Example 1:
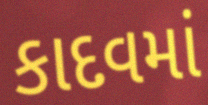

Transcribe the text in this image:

કાદવમાં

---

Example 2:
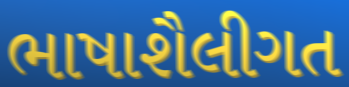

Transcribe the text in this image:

ભાષાશૈલીગત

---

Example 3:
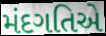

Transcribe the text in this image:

મંદગતિએ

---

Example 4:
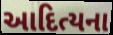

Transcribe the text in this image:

આદિત્યના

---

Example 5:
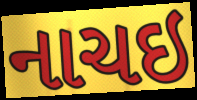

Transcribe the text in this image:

નાચઇ